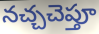
నచ్చచెప్తూ